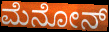
ಮೆನೋನ್